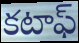
కటాఫ్